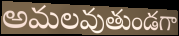
అమలవుతుండగా